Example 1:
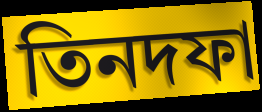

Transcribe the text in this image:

তিনদফা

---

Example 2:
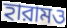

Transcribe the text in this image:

হারামও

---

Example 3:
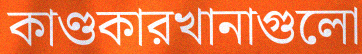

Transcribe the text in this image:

কাণ্ডকারখানাগুলো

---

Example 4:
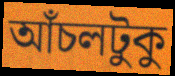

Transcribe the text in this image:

আঁচলটুকু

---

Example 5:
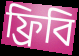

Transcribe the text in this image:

ফ্রিবি